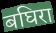
बघिरा